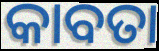
କାବତା